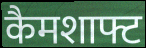
कैमशाफ्ट